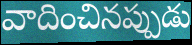
వాదించినప్పుడు